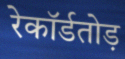
रेकॉर्डतोड़